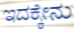
ಇದಕ್ಕೇನು